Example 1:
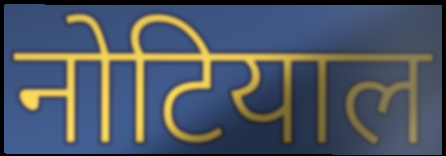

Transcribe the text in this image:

नोटियाल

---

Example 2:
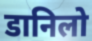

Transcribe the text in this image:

डानिलो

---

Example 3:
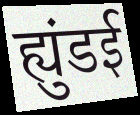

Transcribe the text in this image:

ह्युंडई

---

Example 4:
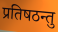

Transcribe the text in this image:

प्रतिषठन्तु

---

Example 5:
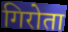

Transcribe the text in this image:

गिरोता